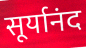
सूर्यानंद